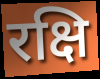
रक्षि